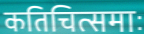
कतिचित्समाः